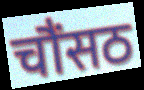
चौंसठ